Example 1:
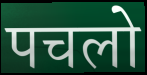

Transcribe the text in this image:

पचलो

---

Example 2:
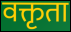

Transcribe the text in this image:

वक्तृता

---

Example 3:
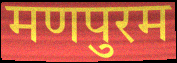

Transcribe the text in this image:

मणपुरम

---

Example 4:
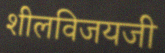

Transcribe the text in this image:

शीलविजयजी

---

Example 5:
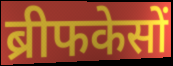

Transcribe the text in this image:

ब्रीफकेसों